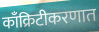
काँक्रिटीकरणात